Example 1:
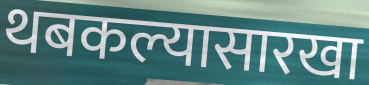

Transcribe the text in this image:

थबकल्यासारखा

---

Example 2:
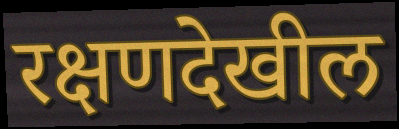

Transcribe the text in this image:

रक्षणदेखील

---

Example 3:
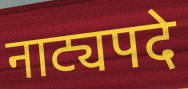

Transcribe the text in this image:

नाट्यपदे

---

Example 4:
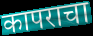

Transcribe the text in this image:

कापराचा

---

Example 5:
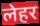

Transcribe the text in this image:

लेहर